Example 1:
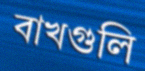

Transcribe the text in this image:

বাখগুলি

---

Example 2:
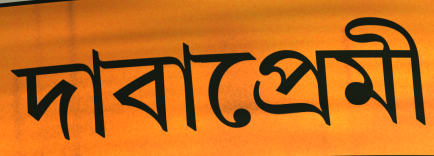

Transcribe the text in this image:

দাবাপ্রেমী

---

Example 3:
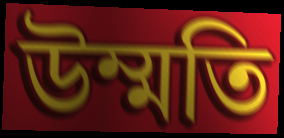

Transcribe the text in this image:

উম্মতি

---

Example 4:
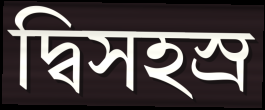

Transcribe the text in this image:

দ্বিসহস্র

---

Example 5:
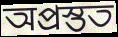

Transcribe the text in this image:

অপ্রস্তত